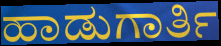
ಹಾಡುಗಾರ್ತಿ